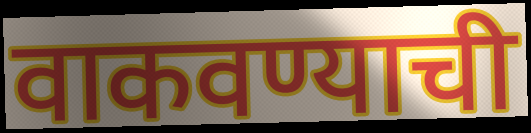
वाकवण्याची